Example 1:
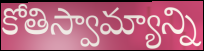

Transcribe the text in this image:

కోతిస్వామ్యాన్ని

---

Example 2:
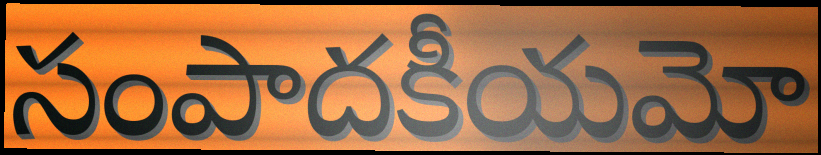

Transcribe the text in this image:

సంపాదకీయమో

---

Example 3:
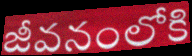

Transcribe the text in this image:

జీవనంలోకి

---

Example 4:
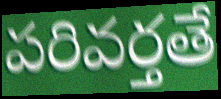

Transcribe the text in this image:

పరివర్తతే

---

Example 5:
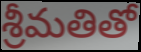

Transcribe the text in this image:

శ్రీమతితో